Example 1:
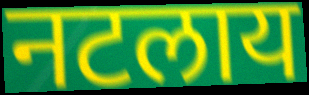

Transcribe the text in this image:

नटलाय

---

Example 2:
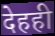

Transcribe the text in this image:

देहही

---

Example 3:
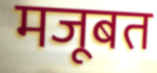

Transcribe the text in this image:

मजूबत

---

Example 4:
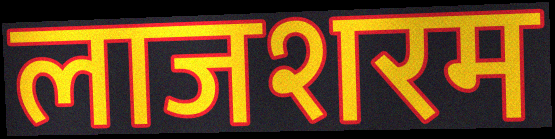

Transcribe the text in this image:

लाजशरम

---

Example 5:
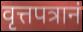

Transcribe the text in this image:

वृत्तपत्रानं